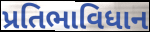
પ્રતિભાવિધાન